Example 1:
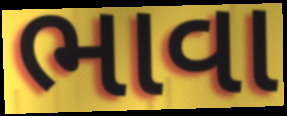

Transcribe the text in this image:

ભાવા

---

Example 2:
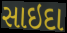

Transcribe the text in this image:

સાઇદા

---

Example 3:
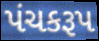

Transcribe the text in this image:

પંચકરૂપ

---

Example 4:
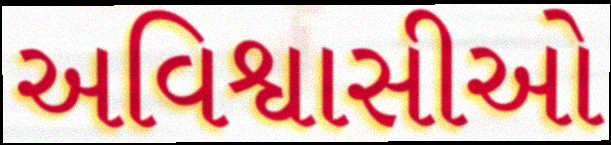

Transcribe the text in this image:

અવિશ્વાસીઓ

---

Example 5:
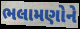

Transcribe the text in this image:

ભલામણોને